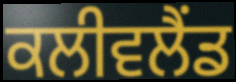
ਕਲੀਵਲੈਂਡ